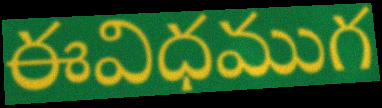
ఈవిధముగ